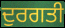
ਦੁਰਗਤੀ